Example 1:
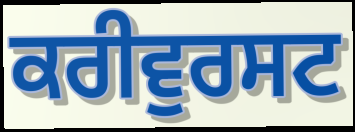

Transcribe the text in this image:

ਕਰੀਵੁਰਸਟ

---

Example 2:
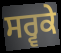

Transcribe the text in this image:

ਸਰ੍ਵਕੇ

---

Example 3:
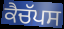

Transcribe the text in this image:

ਕੈਚੱਪਸ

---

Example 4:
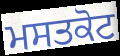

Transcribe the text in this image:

ਮਸਤਕੋਟ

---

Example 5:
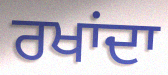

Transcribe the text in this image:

ਰਖਾਂਦਾ